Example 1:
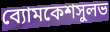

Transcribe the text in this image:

ব্যোমকেশসুলভ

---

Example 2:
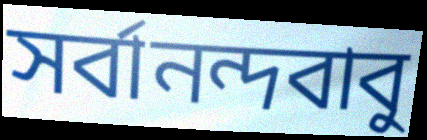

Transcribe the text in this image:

সর্বানন্দবাবু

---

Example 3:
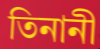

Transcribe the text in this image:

তিনানী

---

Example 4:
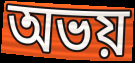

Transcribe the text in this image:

অভয়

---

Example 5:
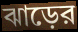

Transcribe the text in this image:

ঝাড়ের